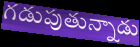
గడుపుతున్నాడు